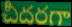
చీదరగా